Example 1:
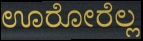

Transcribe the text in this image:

ಊರೋರೆಲ್ಲ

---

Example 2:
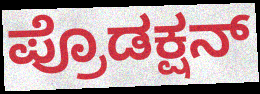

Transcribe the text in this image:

ಪ್ರೊಡಕ್ಷನ್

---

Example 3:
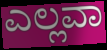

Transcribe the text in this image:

ಎಲ್ಲವಾ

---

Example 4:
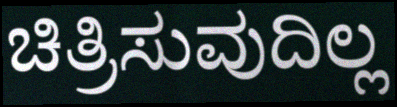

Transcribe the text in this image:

ಚಿತ್ರಿಸುವುದಿಲ್ಲ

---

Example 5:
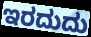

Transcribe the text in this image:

ಇರದುದು